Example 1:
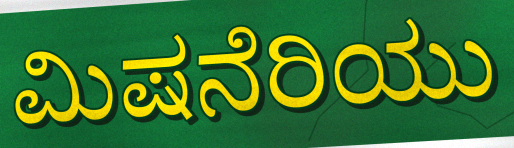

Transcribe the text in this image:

ಮಿಷನೆರಿಯು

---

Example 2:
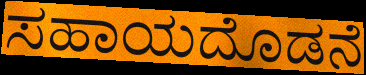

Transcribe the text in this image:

ಸಹಾಯದೊಡನೆ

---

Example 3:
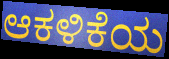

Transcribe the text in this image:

ಆಕಳಿಕೆಯ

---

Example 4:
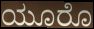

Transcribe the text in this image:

ಯೂರೊ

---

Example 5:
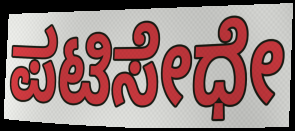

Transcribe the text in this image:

ಪಟಿಸೇಧೇ